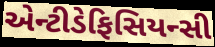
એન્ટીડેફિસિયન્સી